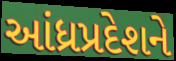
આંધ્રપ્રદેશને